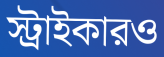
স্ট্রাইকারও